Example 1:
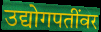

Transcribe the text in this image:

उद्योगपतींवर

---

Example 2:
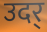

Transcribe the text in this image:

उदर्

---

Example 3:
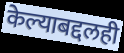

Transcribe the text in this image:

केल्याबद्दलही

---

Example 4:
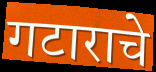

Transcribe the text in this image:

गटाराचे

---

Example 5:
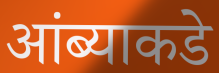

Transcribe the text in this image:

आंब्याकडे